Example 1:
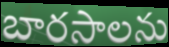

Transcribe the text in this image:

బారసాలను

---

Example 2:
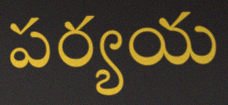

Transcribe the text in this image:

పర్యయ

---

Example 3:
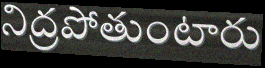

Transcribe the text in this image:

నిద్రపోతుంటారు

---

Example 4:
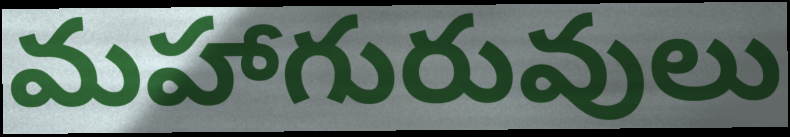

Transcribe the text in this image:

మహాగురువులు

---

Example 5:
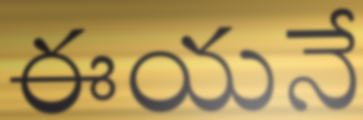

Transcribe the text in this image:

ఈయనే